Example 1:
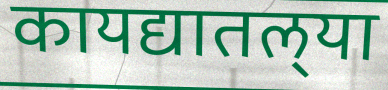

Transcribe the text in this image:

कायद्यातल्या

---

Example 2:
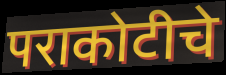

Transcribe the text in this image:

पराकोटीचे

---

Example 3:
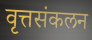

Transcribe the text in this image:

वृत्तसंकलन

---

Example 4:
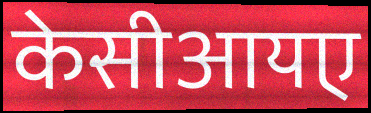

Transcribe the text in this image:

केसीआयए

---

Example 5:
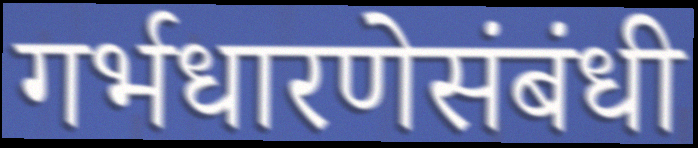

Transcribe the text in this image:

गर्भधारणेसंबंधी